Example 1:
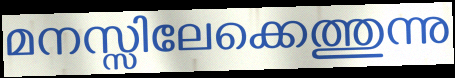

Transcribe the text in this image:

മനസ്സിലേക്കെത്തുന്നു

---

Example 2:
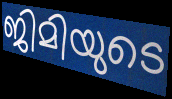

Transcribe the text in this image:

ജിമിയുടെ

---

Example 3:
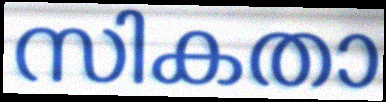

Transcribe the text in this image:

സികതാ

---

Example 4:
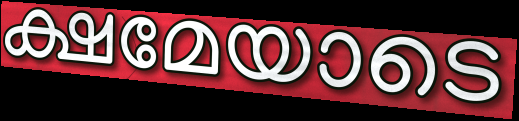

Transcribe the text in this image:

ക്ഷമേയാടെ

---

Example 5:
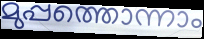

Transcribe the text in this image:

മുപ്പത്തൊന്നാം